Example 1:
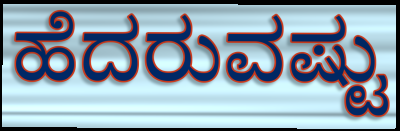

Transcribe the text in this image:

ಹೆದರುವಷ್ಟು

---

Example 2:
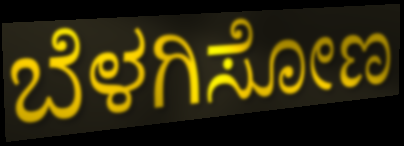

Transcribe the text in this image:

ಬೆಳಗಿಸೋಣ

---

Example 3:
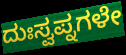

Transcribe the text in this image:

ದುಃಸ್ವಪ್ನಗಳೇ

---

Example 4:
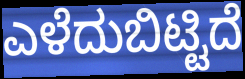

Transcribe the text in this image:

ಎಳೆದುಬಿಟ್ಟಿದೆ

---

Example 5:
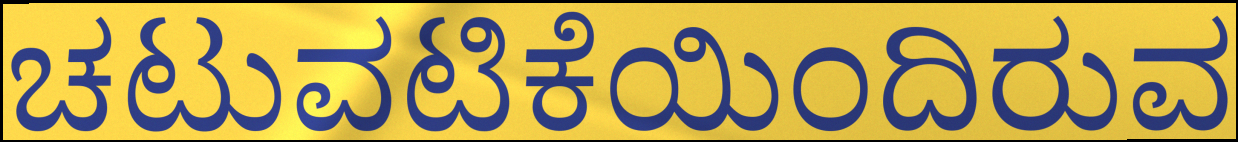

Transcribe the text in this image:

ಚಟುವಟಿಕೆಯಿಂದಿರುವ